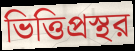
ভিত্তিপ্রস্থর